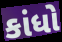
કાંધો